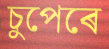
চুপেৰে